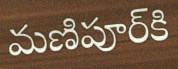
మణిపూర్‌కి